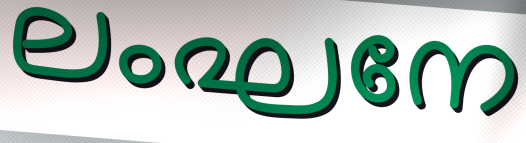
ലംഘനേ